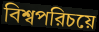
বিশ্বপরিচয়ে